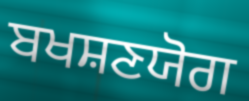
ਬਖਸ਼ਣਯੋਗ